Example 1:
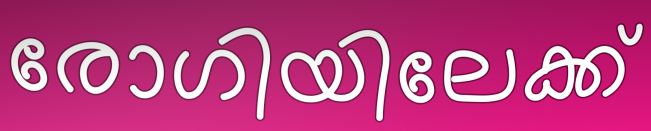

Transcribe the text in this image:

രോഗിയിലേക്ക്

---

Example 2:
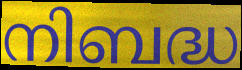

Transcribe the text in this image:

നിബദ്ധ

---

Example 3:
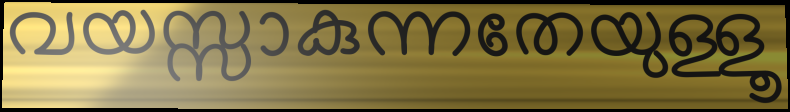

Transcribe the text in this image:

വയസ്സാകുന്നതേയുള്ളൂ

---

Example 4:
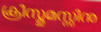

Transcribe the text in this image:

ക്രിസ്തുമസ്സിനു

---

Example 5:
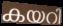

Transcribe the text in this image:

കയറി